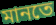
মানতে